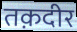
तक़दीर